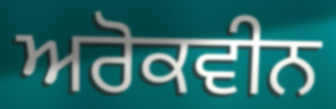
ਅਰੋਕਵੀਨ